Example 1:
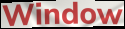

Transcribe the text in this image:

Window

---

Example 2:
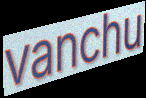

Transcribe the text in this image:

vanchu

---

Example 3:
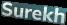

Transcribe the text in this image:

Surekh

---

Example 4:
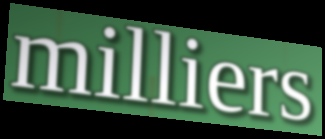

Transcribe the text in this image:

milliers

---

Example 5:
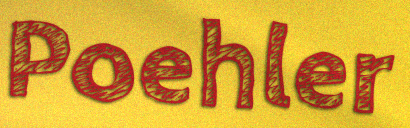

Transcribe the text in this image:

Poehler